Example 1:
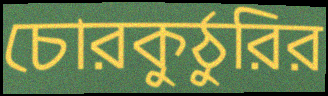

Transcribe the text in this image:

চোরকুঠুরির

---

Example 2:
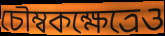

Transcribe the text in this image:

চৌম্বকক্ষেত্রেও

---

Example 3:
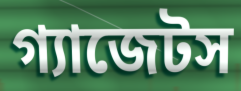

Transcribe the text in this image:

গ্যাজেটস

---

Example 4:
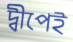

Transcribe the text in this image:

দ্বীপেই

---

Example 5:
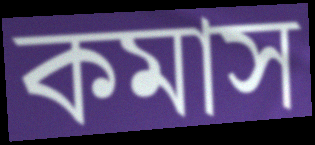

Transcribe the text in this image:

কমাস